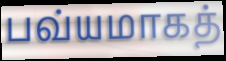
பவ்யமாகத்